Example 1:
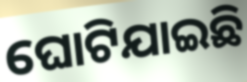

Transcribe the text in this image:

ଘୋଟିଯାଇଛି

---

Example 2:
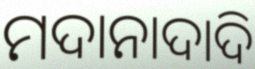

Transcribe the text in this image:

ମଦାନାଦାଦି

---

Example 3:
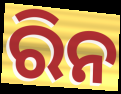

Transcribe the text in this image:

ରିନ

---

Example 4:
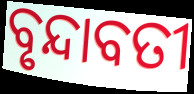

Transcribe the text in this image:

ବୃନ୍ଦାବତୀ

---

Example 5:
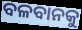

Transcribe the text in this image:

ବଳବାନକୁ